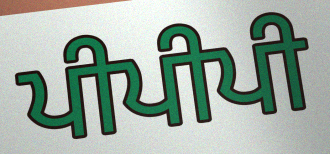
ਪੀਪੀਪੀ